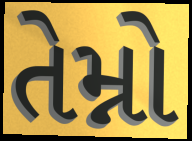
તેમ્નો